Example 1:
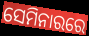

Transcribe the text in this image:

ସେମିନାରରେ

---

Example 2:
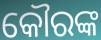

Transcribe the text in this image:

କୌରଙ୍କ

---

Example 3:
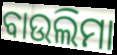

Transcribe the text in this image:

ବାଉଲିମା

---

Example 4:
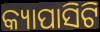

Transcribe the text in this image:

କ୍ୟାପାସିଟି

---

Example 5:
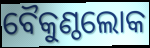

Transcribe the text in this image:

ବୈକୁଣ୍ଠଲୋକ